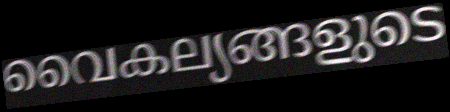
വൈകല്യങ്ങളുടെ